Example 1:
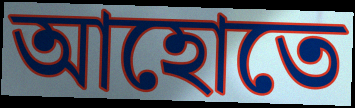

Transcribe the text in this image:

আহোতে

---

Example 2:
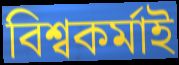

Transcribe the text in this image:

বিশ্বকৰ্মাই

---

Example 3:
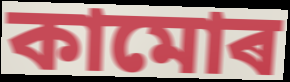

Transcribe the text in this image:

কামোৰ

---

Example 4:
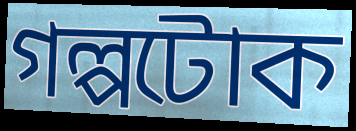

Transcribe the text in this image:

গল্পটোক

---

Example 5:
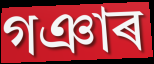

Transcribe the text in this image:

গঞাৰ